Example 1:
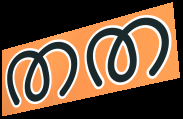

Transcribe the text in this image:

തത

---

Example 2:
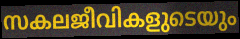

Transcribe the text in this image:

സകലജീവികളുടെയും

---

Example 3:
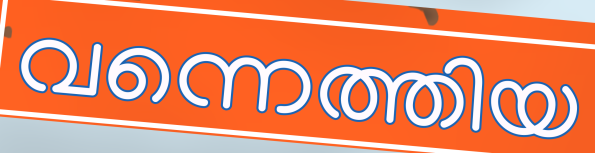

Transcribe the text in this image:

വന്നെത്തിയ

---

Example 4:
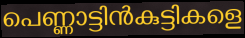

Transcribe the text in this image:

പെണ്ണാട്ടിൻകുട്ടികളെ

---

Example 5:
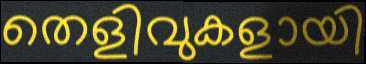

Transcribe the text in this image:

തെളിവുകളായി